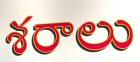
శరాలు